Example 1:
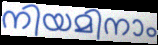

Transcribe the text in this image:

നിയമിനാം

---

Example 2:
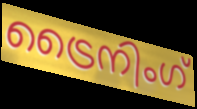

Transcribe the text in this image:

ട്രൈനിംഗ്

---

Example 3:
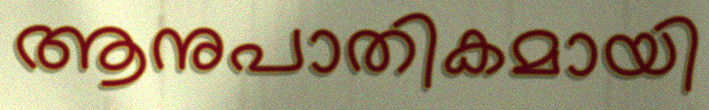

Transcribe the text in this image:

ആനുപാതികമായി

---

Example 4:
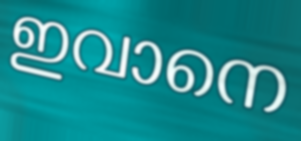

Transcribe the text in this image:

ഇവാനെ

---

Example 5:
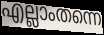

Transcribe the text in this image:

എല്ലാംതന്നെ